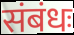
संबंधः